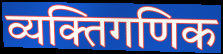
व्यक्तिगणिक